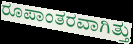
ರೂಪಾಂತರವಾಗಿತ್ತು